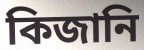
কিজানি